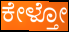
ಕೇಳ್ತೋ